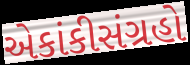
એકાંકીસંગ્રહો